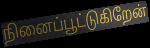
நினைப்பூட்டுகிறேன்